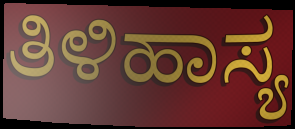
ತಿಳಿಹಾಸ್ಯ